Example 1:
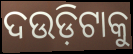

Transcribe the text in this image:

ଦଉଡ଼ିଟାକୁ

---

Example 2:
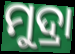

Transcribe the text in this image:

ମୁଦ୍ରା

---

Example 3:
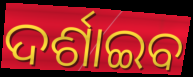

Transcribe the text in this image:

ଦର୍ଶାଇବ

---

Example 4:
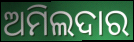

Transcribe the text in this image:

ଅମିଲଦାର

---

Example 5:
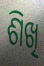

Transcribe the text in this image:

ଶିଖି